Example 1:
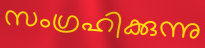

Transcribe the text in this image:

സംഗ്രഹിക്കുന്നു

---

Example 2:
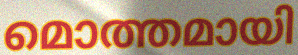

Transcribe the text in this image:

മൊത്തമായി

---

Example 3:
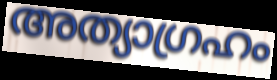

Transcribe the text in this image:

അത്യാഗ്രഹം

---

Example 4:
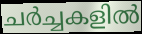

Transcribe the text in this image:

ചർച്ചകളിൽ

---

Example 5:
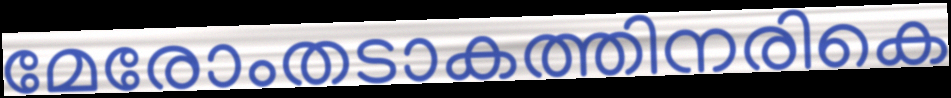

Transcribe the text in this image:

മേരോംതടാകത്തിനരികെ